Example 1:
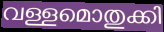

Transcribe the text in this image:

വള്ളമൊതുക്കി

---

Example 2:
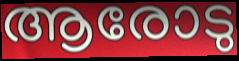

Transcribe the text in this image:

ആരോടു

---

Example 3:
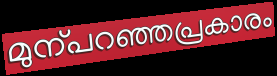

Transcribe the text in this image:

മുന്പറഞ്ഞപ്രകാരം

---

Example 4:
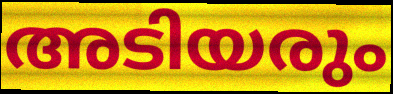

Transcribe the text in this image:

അടിയരും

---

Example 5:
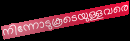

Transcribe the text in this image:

നിന്നോടുകൂടെയുള്ളവരെ